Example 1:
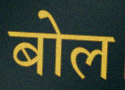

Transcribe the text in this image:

बोल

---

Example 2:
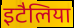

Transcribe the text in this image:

इटैलिया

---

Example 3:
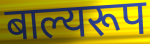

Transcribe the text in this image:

बाल्यरूप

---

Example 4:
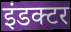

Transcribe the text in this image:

इंडक्टर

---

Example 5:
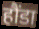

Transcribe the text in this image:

हौंडा